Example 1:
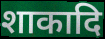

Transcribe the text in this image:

शाकादि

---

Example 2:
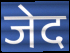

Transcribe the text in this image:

जेद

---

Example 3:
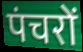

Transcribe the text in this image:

पंचरों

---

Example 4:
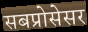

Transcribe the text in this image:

सबप्रोसेसर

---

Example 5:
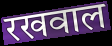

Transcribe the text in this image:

रखवाल